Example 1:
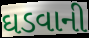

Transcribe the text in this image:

ઘડવાની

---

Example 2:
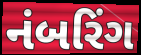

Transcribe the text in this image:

નંબરિંગ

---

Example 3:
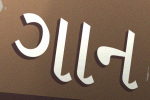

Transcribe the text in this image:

ગાન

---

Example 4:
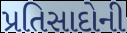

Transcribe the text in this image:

પ્રતિસાદોની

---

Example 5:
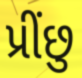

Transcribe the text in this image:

પ્રીંછુ